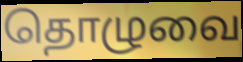
தொழுவை